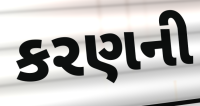
કરણની